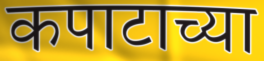
कपाटाच्या